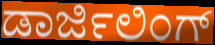
ಡಾರ್ಜಿಲಿಂಗ್